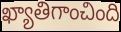
ఖ్యాతిగాంచింది